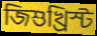
জিশুখ্রিস্ট